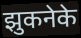
झुकनेके